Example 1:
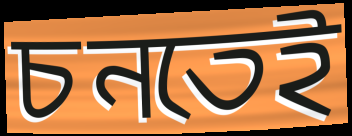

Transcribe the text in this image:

চনতেই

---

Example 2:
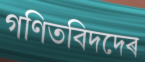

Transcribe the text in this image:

গণিতবিদদেৰ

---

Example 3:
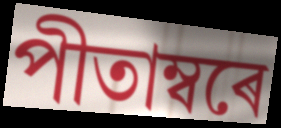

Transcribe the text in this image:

পীতাম্বৰে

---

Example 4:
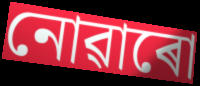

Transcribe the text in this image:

নোৱাৰো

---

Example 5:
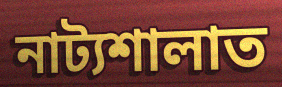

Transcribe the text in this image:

নাট্যশালাত